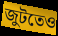
জুটতেও